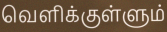
வெளிக்குள்ளும்